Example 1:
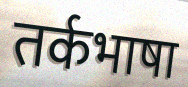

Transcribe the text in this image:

तर्कभाषा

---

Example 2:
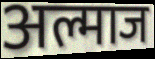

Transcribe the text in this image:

अल्माज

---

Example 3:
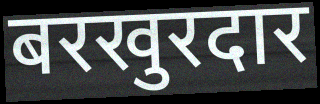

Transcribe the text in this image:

बरखुरदार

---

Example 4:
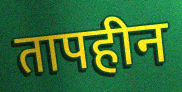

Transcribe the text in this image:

तापहीन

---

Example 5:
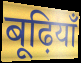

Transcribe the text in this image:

बूढ़ियाँ